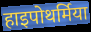
हाइपोथर्मिया